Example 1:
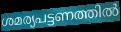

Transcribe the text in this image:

ശമര്യപട്ടണത്തിൽ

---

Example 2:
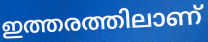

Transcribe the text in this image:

ഇത്തരത്തിലാണ്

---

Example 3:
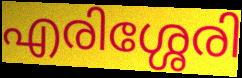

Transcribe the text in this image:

എരിശ്ശേരി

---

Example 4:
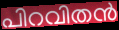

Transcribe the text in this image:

പിറവിതൻ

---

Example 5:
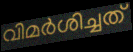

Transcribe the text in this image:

വിമർശിച്ചത്